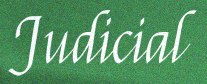
Judicial